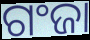
ଗଂଜା